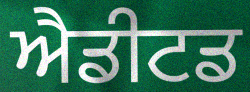
ਐਡੀਟਡ